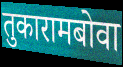
तुकारामबोवा